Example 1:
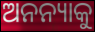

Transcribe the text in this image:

ଅନନ୍ୟାକୁ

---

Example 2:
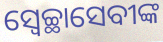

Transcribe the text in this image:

ସ୍ୱେଚ୍ଛାସେବୀଙ୍କ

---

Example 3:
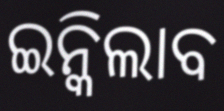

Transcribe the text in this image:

ଇନ୍କିଲାବ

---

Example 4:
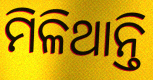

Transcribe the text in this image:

ମିଳିଥାନ୍ତି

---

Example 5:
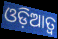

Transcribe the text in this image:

ଓଡ଼ିଆତ୍ୱ